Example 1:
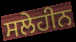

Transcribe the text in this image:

ਸਲੇਹੀਨ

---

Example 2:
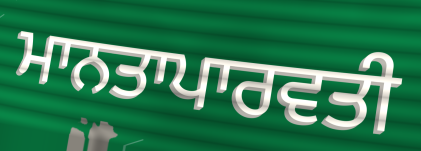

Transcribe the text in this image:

ਮਾਨਤਾਪਾਰਵਤੀ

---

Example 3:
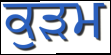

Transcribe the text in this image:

ਕੁੜਮ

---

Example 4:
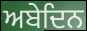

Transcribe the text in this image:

ਅਬੇਦਿਨ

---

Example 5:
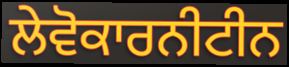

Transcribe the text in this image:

ਲੇਵੋਕਾਰਨੀਟੀਨ